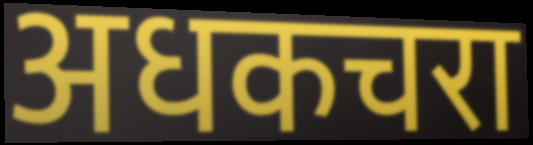
अधकचरा